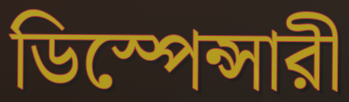
ডিস্পেন্সারী